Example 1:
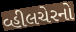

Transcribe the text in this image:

વ્હીલચેરનો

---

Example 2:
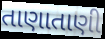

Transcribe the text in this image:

તાણાતાણી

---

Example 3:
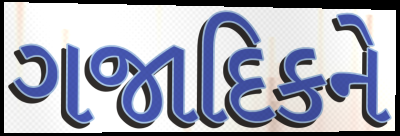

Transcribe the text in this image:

ગજાદિકને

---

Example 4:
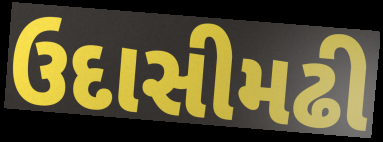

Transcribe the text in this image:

ઉદાસીમઢી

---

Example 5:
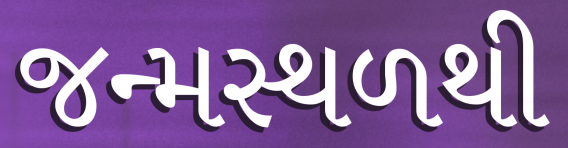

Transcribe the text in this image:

જન્મસ્થળથી